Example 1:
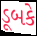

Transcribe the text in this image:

ડૂબકે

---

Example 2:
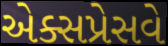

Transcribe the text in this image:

એક્સપ્રેસવે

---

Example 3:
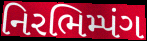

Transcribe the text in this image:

નિરભિમ્પંગ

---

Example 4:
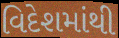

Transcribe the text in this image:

વિદેશમાંથી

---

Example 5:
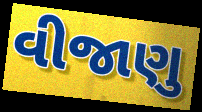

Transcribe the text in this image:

વીજાણુ